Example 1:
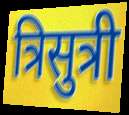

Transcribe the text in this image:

त्रिसुत्री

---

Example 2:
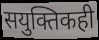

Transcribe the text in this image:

सयुक्तिकही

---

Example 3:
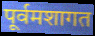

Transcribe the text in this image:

पूर्वमशागत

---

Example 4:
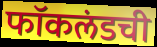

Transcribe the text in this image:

फॉकलंडची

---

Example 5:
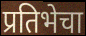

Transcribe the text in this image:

प्रतिभेचा